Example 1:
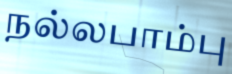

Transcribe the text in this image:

நல்லபாம்பு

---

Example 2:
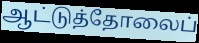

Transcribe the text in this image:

ஆட்டுத்தோலைப்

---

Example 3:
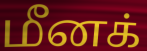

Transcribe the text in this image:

மீனக்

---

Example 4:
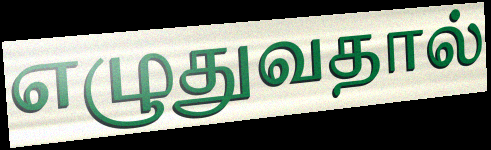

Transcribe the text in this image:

எழுதுவதால்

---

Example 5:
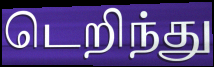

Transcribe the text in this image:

டெறிந்து